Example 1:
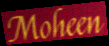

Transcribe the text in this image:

Moheen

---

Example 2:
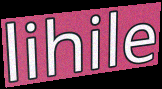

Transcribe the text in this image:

lihile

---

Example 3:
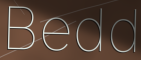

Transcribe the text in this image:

Bedd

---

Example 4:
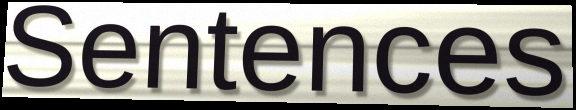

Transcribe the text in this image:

Sentences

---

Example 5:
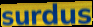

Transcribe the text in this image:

surdus